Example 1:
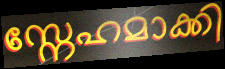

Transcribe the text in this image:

സ്നേഹമാക്കി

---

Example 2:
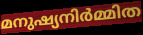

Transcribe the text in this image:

മനുഷ്യനിർമ്മിത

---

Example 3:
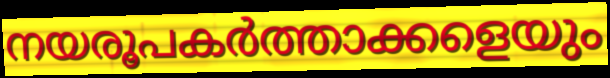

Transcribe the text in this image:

നയരൂപകർത്താക്കളെയും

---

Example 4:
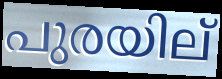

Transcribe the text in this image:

പുരയില്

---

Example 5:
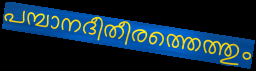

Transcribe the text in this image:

പമ്പാനദീതീരത്തെത്തും